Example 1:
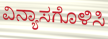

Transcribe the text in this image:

ವಿನ್ಯಾಸಗೊಳಿಸಿ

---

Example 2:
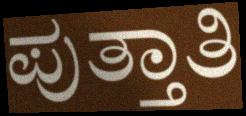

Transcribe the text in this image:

ಪುತ್ತಾತಿ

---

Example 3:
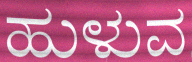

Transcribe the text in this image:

ಹುಳುವ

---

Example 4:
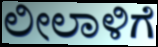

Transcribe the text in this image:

ಲೀಲಾಳಿಗೆ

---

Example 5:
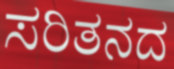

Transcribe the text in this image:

ಸರಿತನದ